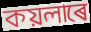
কয়লাৰে